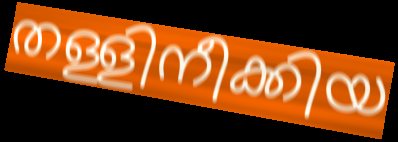
തള്ളിനീക്കിയ